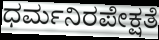
ಧರ್ಮನಿರಪೇಕ್ಷತೆ